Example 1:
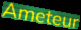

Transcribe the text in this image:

Ameteur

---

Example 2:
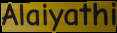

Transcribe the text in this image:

Alaiyathi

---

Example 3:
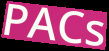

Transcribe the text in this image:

PACs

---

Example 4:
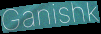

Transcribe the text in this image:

Ganishk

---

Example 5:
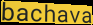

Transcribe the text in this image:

bachava